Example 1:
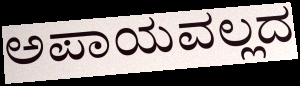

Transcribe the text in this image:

ಅಪಾಯವಲ್ಲದ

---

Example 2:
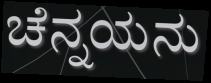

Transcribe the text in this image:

ಚೆನ್ನಯನು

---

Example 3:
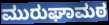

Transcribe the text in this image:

ಮುರುಘಾಮಠ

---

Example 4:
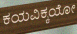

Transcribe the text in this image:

ಕಯವಿಕ್ಕಯೋ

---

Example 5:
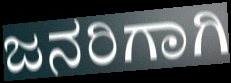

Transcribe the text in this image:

ಜನರಿಗಾಗಿ